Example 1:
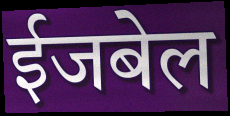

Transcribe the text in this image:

ईजबेल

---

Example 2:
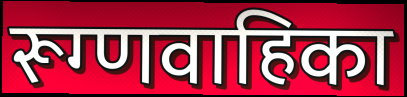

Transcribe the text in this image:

रूग्णवाहिका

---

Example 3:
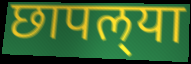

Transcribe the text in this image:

छापल्या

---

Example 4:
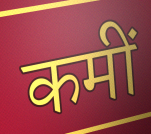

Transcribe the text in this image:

कमीं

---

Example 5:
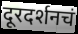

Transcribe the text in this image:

दूरदर्शनचं